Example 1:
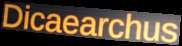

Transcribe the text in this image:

Dicaearchus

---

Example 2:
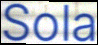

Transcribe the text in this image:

Sola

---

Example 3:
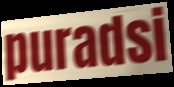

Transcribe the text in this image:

puradsi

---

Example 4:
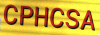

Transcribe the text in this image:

CPHCSA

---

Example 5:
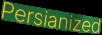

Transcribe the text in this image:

Persianized